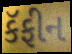
કૅફીન